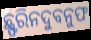
ଛ୍ଫରିନଦୁବନୁଫ